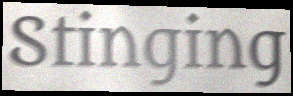
Stinging